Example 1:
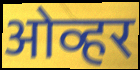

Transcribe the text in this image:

ओव्हर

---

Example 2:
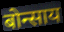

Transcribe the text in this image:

बोन्साय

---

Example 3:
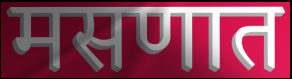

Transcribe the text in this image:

मसणात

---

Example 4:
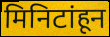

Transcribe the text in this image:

मिनिटांहून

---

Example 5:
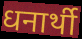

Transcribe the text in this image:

धनार्थी